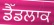
ਡੈੱਡਲਾਕ